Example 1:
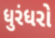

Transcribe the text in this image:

ધુરંધરો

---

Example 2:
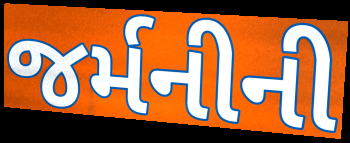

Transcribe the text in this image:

જર્મનીની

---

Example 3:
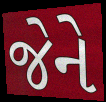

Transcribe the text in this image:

જેને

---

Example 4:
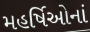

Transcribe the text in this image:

મહર્ષિઓનાં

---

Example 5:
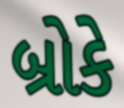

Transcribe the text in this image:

બ્રોકે